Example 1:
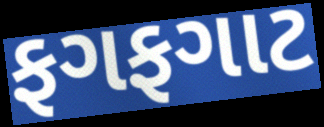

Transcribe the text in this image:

ફગફગાટ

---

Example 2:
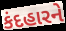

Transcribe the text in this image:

કંદહારને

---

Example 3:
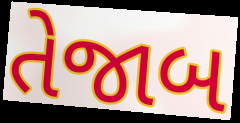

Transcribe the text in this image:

તેજાબ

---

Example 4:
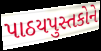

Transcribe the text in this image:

પાઠયપુસ્તકોને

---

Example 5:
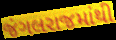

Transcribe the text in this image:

જંગલરાજમાંથી